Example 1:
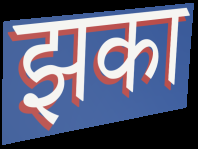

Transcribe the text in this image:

झका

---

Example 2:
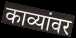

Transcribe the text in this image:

काव्यांवर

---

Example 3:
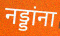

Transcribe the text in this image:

नड्डांना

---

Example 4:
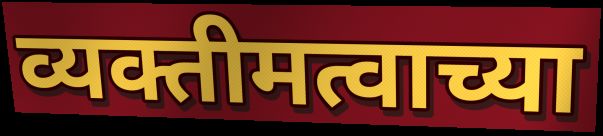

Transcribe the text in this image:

व्यक्तीमत्वाच्या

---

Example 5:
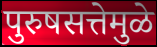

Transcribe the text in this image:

पुरुषसत्तेमुळे